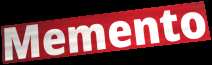
Memento